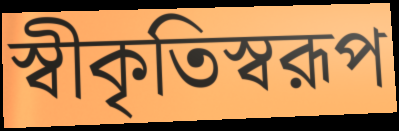
স্বীকৃতিস্বরূপ